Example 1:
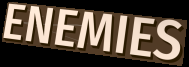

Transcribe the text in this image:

ENEMIES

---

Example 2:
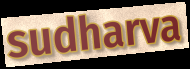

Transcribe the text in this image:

sudharva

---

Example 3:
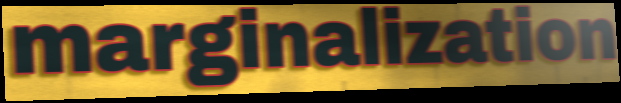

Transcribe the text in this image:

marginalization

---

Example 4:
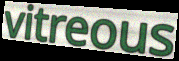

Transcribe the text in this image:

vitreous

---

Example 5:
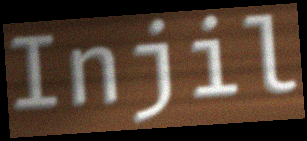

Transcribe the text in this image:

Injil